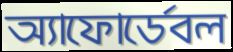
অ্যাফোর্ডেবল